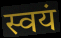
स्‍वयं